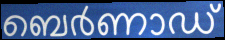
ബെർണാഡ്